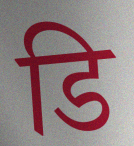
डि